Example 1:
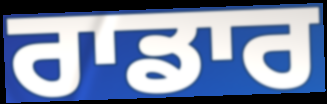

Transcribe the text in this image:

ਰਾਡਾਰ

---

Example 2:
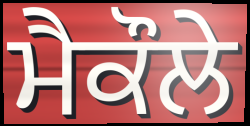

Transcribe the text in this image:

ਮੈਕੌਲੇ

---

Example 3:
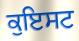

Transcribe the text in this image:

ਕੁਇਸਟ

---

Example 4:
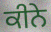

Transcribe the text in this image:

ਕੀਨੇ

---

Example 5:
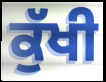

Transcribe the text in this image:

ਕੁੱਖੀ